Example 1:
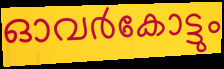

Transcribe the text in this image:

ഓവർകോട്ടും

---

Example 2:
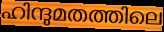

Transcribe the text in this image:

ഹിന്ദുമതത്തിലെ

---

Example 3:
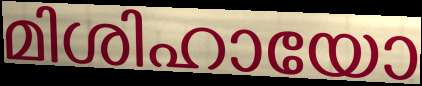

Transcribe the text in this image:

മിശിഹായോ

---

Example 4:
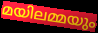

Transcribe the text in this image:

മയിലമ്മയും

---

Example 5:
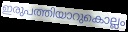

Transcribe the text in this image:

ഇരുപത്തിയാറുകൊല്ലം